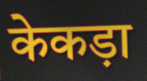
केकड़ा